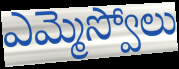
ఎమ్మెస్వోలు